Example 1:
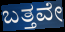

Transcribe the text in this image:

ಬತ್ತವೇ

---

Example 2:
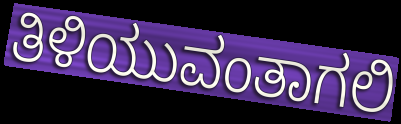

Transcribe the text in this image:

ತಿಳಿಯುವಂತಾಗಲಿ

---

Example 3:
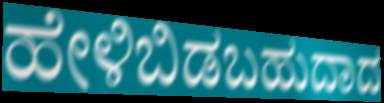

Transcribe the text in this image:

ಹೇಳಿಬಿಡಬಹುದಾದ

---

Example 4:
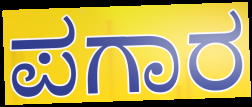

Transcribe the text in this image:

ಪಗಾರ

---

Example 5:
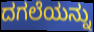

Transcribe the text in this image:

ದಗಲೆಯನ್ನು